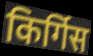
किर्गिस